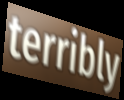
terribly